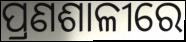
ପ୍ରଣଶାଳୀରେ